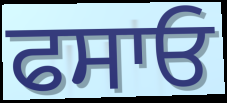
ਫਸਾਓ